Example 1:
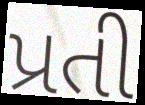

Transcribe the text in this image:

પ્રતી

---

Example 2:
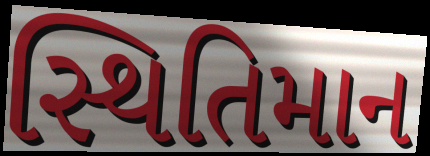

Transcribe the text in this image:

સ્થિતિમાન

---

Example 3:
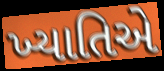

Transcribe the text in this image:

ખ્યાતિએ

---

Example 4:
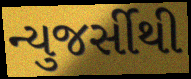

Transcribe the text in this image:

ન્યુજર્સીથી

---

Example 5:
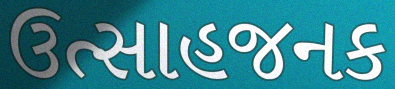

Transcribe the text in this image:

ઉત્સાહજનક